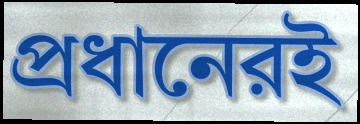
প্রধানেরই